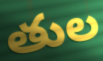
తుల